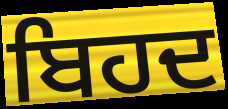
ਬਿਹਦ